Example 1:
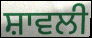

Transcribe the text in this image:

ਸ਼ਾਵਲੀ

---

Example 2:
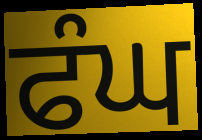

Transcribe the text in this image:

ਫੰਘ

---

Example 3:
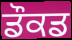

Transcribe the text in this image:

ਡੌਕਡ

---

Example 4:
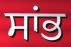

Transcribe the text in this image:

ਸਾਂਭ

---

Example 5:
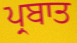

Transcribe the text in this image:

ਪ੍ਰਬਾਤ